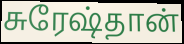
சுரேஷ்தான்